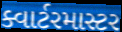
ક્વાર્ટરમાસ્ટર